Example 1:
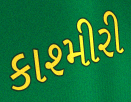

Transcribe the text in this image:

કાશ્મીરી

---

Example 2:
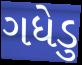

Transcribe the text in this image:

ગધેડુ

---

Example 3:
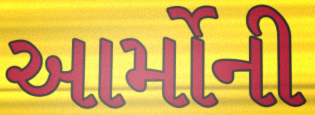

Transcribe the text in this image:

આર્મોની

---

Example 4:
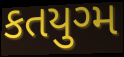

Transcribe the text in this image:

કતયુગ્મ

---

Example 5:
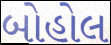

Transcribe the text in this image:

બોહોલ